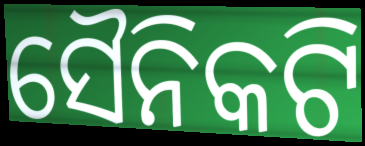
ସୈନିକଟି